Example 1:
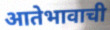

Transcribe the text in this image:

आतेभावाची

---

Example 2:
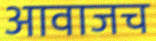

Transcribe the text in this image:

आवाजच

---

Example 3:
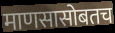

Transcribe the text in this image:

माणसासोबतच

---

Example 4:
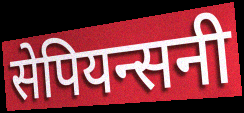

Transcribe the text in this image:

सेपियन्सनी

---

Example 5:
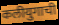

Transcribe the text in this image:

कलीयुगाची